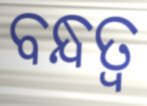
ବନ୍ଧତ୍ୱ